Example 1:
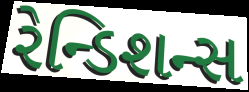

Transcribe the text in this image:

રેન્ડિશન્સ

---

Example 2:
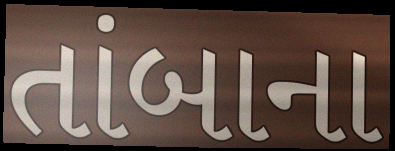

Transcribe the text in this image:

તાંબાના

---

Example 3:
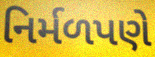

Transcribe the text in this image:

નિર્મળપણે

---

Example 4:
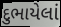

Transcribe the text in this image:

દુભાયેલાં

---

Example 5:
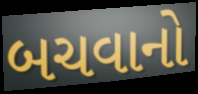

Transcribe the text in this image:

બચવાનો